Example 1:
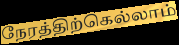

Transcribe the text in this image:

நேரத்திற்கெல்லாம்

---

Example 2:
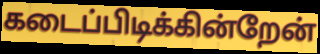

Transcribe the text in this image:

கடைப்பிடிக்கின்றேன்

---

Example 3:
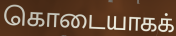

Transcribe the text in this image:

கொடையாகக்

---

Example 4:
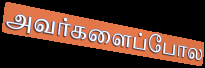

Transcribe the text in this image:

அவர்களைப்போல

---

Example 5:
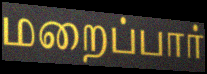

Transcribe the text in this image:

மறைப்பார்